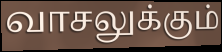
வாசலுக்கும்